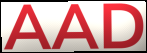
AAD